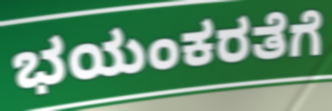
ಭಯಂಕರತೆಗೆ